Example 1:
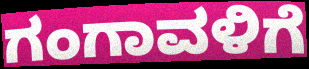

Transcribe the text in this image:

ಗಂಗಾವಳಿಗೆ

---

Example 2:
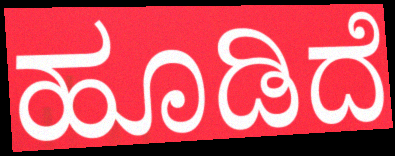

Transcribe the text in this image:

ಹೂಡಿದೆ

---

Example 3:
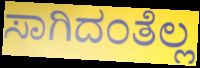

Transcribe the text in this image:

ಸಾಗಿದಂತೆಲ್ಲ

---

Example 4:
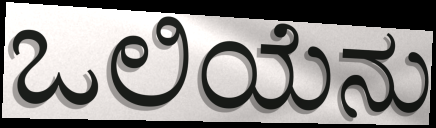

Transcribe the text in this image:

ಒಲಿಯೆನು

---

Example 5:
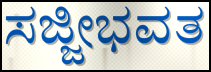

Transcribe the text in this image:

ಸಜ್ಜೀಭವತ